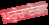
ਪਹੁੰਚਾਏਗਾ